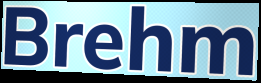
Brehm